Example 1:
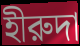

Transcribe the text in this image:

হীরুদা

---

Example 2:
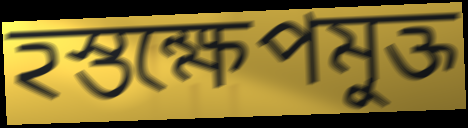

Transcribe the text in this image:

হস্তক্ষেপমুক্ত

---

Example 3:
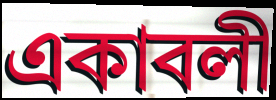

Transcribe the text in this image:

একাবলী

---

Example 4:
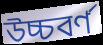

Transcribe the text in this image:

উচ্চবর্ণ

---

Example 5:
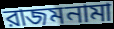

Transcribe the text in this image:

রাজমনামা